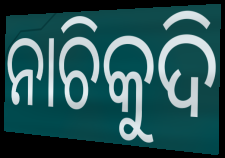
ନାଚିକୁଦି